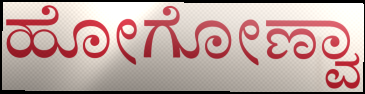
ಹೋಗೋಣ್ವಾ